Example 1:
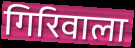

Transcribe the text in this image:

गिरिवाला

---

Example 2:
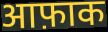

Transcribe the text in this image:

आफ़ाक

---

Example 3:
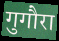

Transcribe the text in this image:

गुगौरा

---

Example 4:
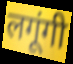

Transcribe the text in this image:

लगूंगी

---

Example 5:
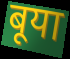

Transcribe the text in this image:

बूया